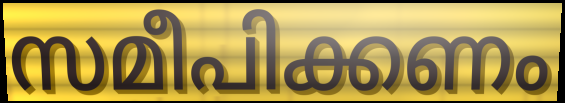
സമീപിക്കണം